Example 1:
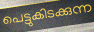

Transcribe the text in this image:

പെട്ടുകിടക്കുന്ന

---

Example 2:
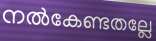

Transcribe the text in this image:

നൽകേണ്ടതല്ലേ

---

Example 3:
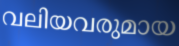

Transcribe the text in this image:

വലിയവരുമായ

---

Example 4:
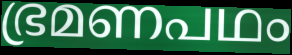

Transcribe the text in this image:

ഭ്രമണപഥം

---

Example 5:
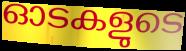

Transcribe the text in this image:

ഓടകളുടെ